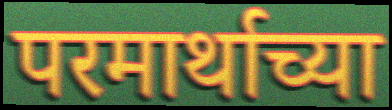
परमार्थाच्या